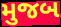
મુજબ